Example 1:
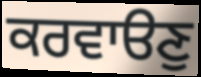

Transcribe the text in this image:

ਕਰਵਾੳਣੁ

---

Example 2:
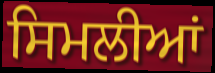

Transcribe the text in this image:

ਸਿਮਲੀਆਂ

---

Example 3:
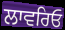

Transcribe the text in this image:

ਲਾਵਰਿਓ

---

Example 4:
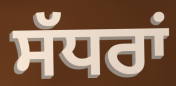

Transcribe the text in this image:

ਸੱਧਰਾਂ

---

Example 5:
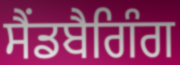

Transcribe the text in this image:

ਸੈਂਡਬੈਗਿੰਗ